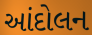
આંદોલન